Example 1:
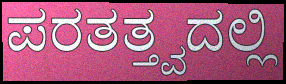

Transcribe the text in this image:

ಪರತತ್ತ್ವದಲ್ಲಿ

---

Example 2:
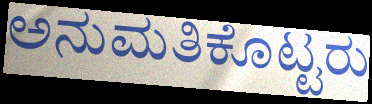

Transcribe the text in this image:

ಅನುಮತಿಕೊಟ್ಟರು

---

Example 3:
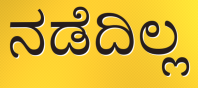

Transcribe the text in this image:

ನಡೆದಿಲ್ಲ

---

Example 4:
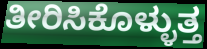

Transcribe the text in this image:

ತೀರಿಸಿಕೊಳ್ಳುತ್ತ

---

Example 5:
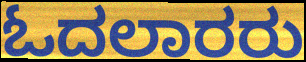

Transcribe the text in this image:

ಓದಲಾರರು